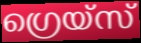
ഗ്രെയ്സ്